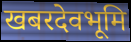
खबरदेवभूमि